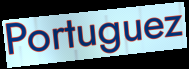
Portuguez